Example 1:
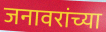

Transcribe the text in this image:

जनावरांच्या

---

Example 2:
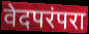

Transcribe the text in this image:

वेदपरंपरा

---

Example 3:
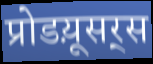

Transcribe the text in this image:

प्रोडय़ूसर्स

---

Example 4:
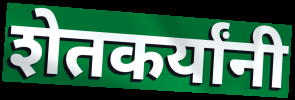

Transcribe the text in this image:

शेतकर्यांनी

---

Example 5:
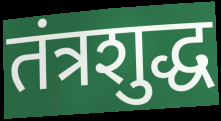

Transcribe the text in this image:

तंत्रशुद्ध